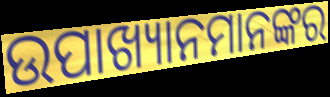
ଉପାଖ୍ୟାନମାନଙ୍କର